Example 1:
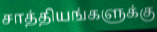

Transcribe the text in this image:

சாத்தியங்களுக்கு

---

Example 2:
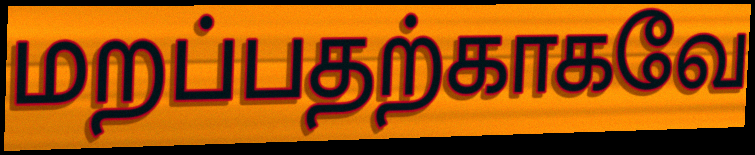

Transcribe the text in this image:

மறப்பதற்காகவே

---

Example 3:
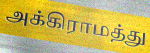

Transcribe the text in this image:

அக்கிராமத்து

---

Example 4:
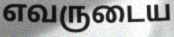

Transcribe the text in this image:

எவருடைய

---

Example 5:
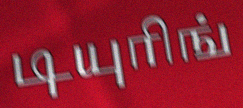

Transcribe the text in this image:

டியுரிங்